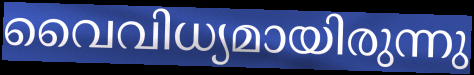
വൈവിധ്യമായിരുന്നു